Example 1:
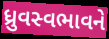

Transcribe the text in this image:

ધ્રુવસ્વભાવને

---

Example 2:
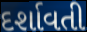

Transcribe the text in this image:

દર્શાવતી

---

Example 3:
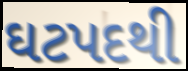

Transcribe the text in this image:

ઘટપદથી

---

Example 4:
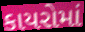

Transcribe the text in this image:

કાયરોમાં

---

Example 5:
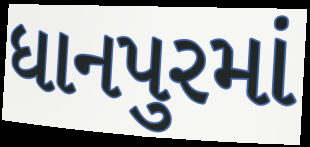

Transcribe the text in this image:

ધાનપુરમાં